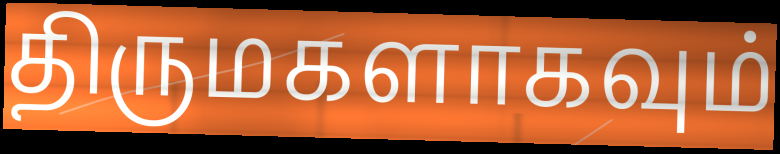
திருமகளாகவும்